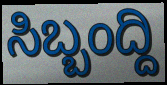
ಸಿಬ್ಬಂದ್ದಿ